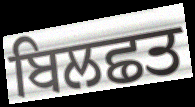
ਬਿਲਛਤ